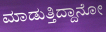
ಮಾಡುತ್ತಿದ್ದಾನೋ